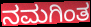
ನಮಗಿಂತ